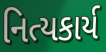
નિત્યકાર્ય